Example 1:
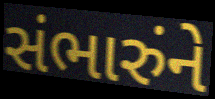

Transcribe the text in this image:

સંભારુંને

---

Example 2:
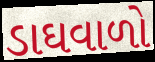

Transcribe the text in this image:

ડાઘવાળો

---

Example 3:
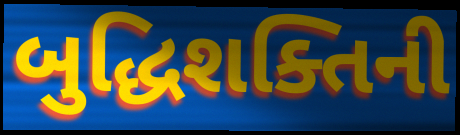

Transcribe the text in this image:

બુદ્ધિશક્તિની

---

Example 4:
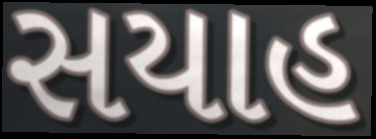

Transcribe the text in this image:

સયાહ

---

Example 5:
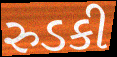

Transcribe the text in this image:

રુડકી